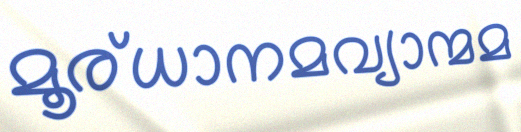
മൂര്ധാനമവ്യാന്മമ